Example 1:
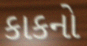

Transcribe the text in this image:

કાકનો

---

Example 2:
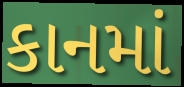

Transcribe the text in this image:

કાનમાં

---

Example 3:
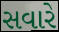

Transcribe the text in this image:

સવારે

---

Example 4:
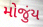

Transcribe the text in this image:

મોજુંય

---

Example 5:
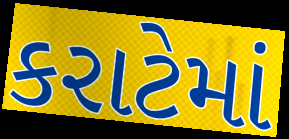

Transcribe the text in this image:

કરાટેમાં